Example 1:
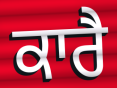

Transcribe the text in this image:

ਕਾਰੈ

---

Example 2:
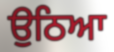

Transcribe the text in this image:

ਉਠਿਆ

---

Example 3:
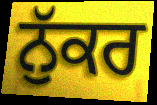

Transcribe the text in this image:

ਨੁੱਕਰ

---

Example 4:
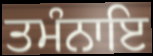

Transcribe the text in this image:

ਤਮੰਨਾਇ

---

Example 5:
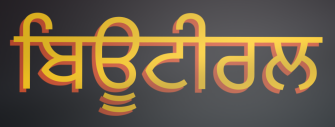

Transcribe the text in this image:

ਬਿਊਟੀਰਲ